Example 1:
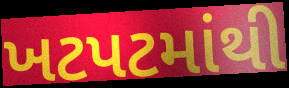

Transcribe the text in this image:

ખટપટમાંથી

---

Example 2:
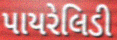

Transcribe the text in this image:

પાયરેલિડી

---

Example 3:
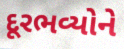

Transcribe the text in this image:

દૂરભવ્યોને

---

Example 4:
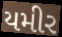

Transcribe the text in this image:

યમીર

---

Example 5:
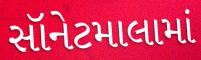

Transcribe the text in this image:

સૉનેટમાલામાં